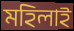
মহিলাই